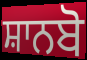
ਸ਼ਾਨਬੋ